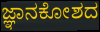
ಜ್ಞಾನಕೋಶದ